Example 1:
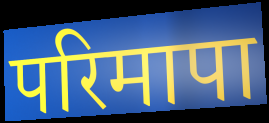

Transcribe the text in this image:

परिमापा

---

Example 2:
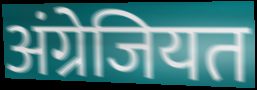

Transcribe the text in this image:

अंग्रेजियत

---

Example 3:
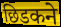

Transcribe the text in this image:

छिडकने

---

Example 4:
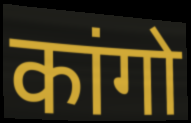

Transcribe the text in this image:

कांगो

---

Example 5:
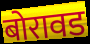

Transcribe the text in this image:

बोरावड